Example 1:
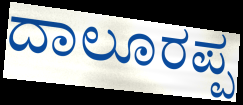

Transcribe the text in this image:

ದಾಲೂರಪ್ಪ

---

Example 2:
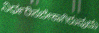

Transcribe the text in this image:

ನಿರ್ಧರಿಸಬೇಕಾಗಿರುವುದು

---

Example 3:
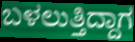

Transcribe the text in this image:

ಬಳಲುತ್ತಿದ್ದಾಗ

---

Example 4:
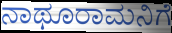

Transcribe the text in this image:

ನಾಥೂರಾಮನಿಗೆ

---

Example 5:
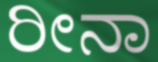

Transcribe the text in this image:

ರೀನಾ